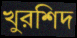
খুরশিদ